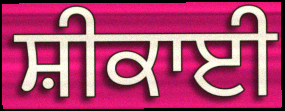
ਸ਼ੀਕਾਈ